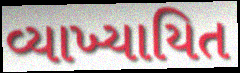
વ્યાખ્યાયિત